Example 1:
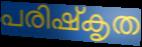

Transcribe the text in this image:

പരിഷ്കൃത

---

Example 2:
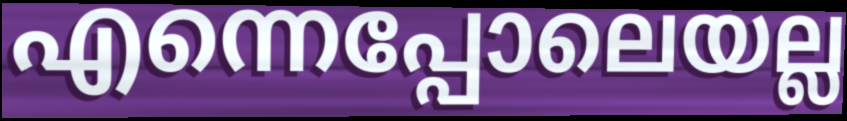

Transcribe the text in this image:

എന്നെപ്പോലെയല്ല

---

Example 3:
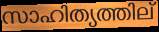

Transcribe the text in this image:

സാഹിത്യത്തില്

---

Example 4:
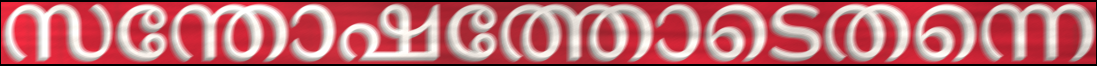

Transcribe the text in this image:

സന്തോഷത്തോടെതന്നെ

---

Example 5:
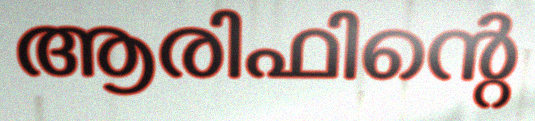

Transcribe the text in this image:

ആരിഫിന്റെ